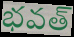
భవత్